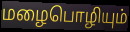
மழைபொழியும்